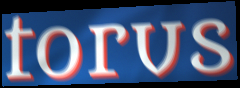
torus